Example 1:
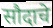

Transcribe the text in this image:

सौदाचे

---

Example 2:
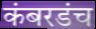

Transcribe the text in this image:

कंबरडंच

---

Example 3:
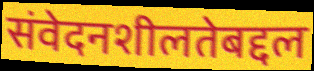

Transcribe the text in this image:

संवेदनशीलतेबद्दल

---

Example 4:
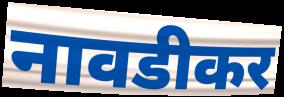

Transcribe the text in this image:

नावडीकर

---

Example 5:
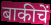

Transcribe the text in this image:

बाकीचें